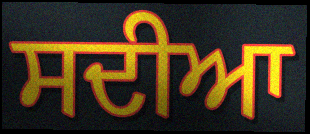
ਸਦੀਆ